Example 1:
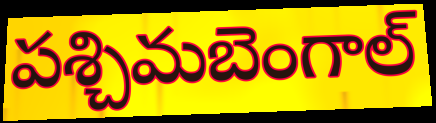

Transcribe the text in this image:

పశ్చిమబెంగాల్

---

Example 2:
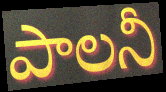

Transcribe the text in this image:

పాలనీ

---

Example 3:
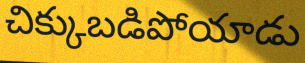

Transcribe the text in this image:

చిక్కుబడిపోయాడు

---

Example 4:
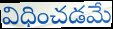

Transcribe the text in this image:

విధించడమే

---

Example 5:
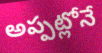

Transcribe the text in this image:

అప్పట్లోనే